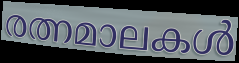
രത്നമാലകൾ